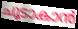
ചൂടാകാൻ